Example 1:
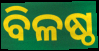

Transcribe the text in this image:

ବିଳଷ୍ଠ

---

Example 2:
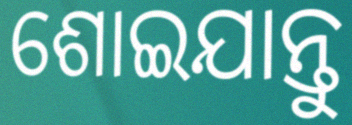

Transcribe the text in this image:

ଶୋଇଯାନ୍ତୁ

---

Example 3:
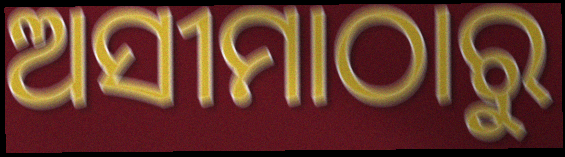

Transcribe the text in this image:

ଅସୀମାଠାରୁ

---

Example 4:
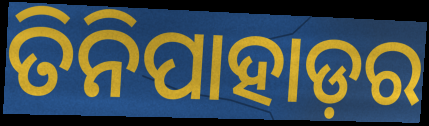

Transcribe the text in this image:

ତିନିପାହାଡ଼ର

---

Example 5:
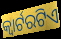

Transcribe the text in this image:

କ୍ୱାର୍ଟରଟିଏ